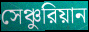
সেঞ্চুরিয়ান